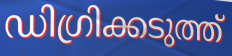
ഡിഗ്രിക്കടുത്ത്